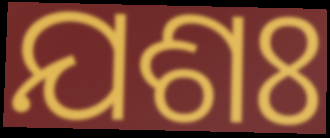
ଯଶଃ